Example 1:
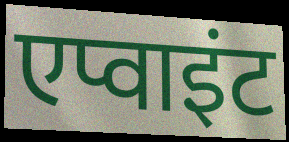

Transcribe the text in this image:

एप्वाइंट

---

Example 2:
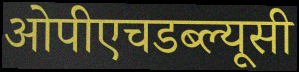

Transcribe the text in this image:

ओपीएचडब्ल्यूसी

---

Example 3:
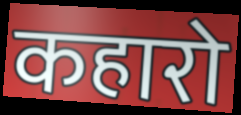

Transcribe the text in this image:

कहारो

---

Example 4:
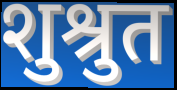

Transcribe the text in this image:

शुश्रुत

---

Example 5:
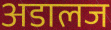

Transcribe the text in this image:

अडालज